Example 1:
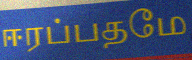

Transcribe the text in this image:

ஈரப்பதமே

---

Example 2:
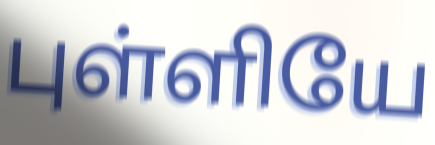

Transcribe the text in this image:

புள்ளியே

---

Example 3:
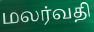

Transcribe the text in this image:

மலர்வதி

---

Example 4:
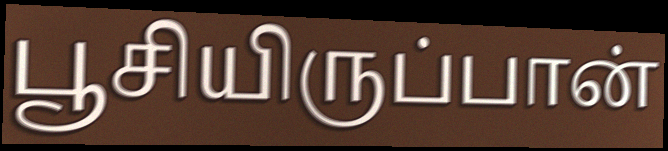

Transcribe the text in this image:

பூசியிருப்பான்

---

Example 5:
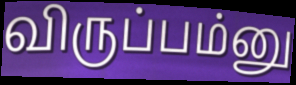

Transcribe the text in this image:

விருப்பம்னு